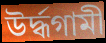
উৰ্দ্ধগামী